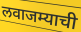
लवाजम्याची